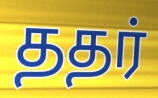
ததர்